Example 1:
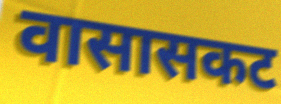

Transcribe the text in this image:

वासासकट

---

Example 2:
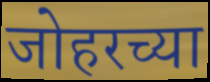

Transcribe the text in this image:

जोहरच्या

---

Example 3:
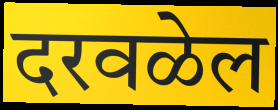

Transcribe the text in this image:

दरवळेल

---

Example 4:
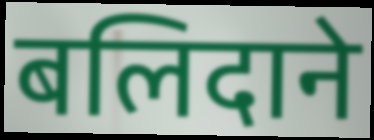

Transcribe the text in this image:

बलिदाने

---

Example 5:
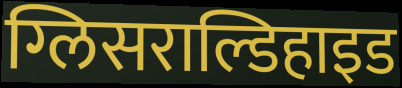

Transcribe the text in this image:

ग्लिसराल्डिहाइड